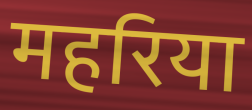
महरिया